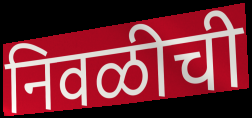
निवळीची